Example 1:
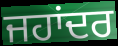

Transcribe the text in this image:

ਜਹਾਂਦਰ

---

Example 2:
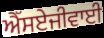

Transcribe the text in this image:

ਐੱਸਏਜੀਵਾਈ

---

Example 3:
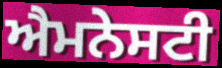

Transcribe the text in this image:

ਐਮਨੇਸਟੀ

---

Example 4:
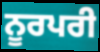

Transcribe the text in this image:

ਨੂਰਪਰੀ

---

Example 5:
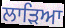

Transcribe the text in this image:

ਲਾੜਿਆ